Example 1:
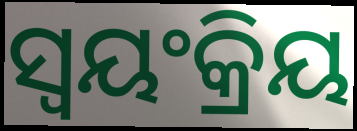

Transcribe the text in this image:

ସ୍ୱୟଂକ୍ରିୟ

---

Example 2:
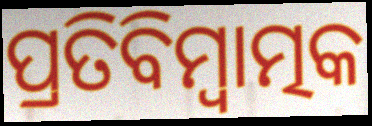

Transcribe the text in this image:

ପ୍ରତିବିମ୍ବାତ୍ମକ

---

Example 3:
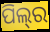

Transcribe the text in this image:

ପିଲ୍‌ର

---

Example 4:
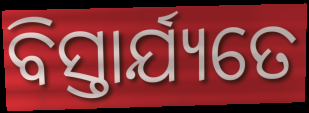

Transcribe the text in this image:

ବିସ୍ତାର୍ଯ୍ୟତେ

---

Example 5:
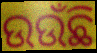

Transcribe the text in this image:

ଉଉଁଛି